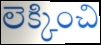
లెక్కించి